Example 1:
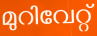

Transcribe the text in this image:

മുറിവേറ്റ്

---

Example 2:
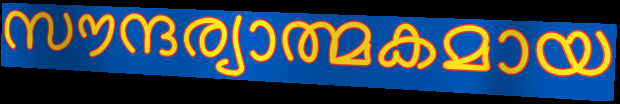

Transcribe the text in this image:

സൗന്ദര്യാത്മകമായ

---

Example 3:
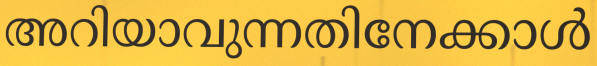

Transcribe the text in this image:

അറിയാവുന്നതിനേക്കാൾ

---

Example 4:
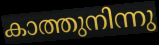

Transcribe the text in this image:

കാത്തുനിന്നു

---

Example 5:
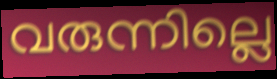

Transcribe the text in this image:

വരുന്നില്ലെ